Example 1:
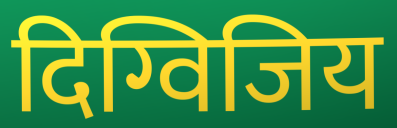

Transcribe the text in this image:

दिग्विजिय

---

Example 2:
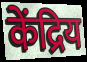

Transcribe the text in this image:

केंद्रिय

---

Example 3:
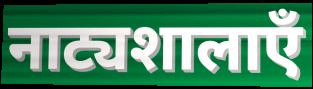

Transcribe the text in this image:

नाट्यशालाएँ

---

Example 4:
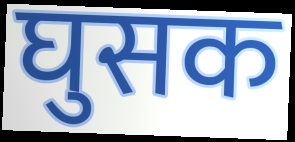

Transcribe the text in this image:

घुसक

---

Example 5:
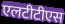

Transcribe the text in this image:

एलटीटीएस